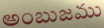
అంబుజము